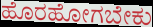
ಹೊರಹೋಗಬೇಕು